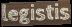
legistis